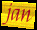
jan